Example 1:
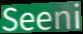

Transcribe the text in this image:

Seeni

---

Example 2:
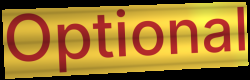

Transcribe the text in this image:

Optional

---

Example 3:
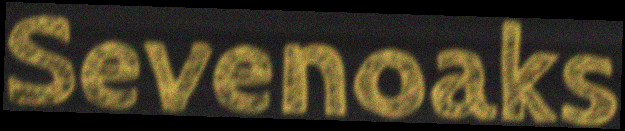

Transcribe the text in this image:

Sevenoaks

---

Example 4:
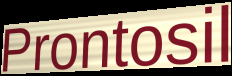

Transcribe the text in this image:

Prontosil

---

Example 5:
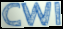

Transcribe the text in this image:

CWI